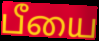
பீயை